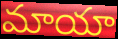
మాయా